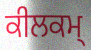
ਕੀਲਕਮ੍